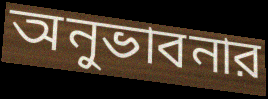
অনুভাবনার